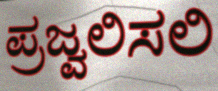
ಪ್ರಜ್ವಲಿಸಲಿ